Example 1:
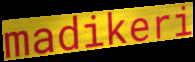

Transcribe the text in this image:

madikeri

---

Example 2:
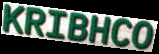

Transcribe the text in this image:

KRIBHCO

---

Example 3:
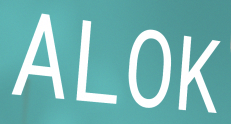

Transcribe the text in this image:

ALOK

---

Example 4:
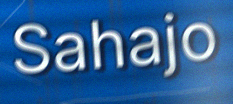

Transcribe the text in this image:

Sahajo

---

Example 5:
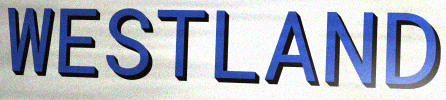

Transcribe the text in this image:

WESTLAND